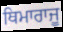
ਥਿਮਾਰਾਜੂ